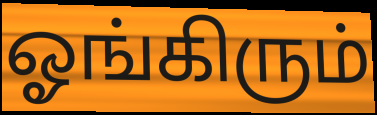
ஓங்கிரும்